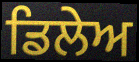
ਡਿਲੇਅ